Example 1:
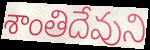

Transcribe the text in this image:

శాంతిదేవుని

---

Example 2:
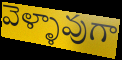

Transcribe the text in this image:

వెళ్ళావుగా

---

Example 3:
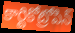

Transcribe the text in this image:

కార్టికోట్రోపిన్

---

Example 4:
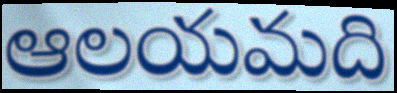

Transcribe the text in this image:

ఆలయమది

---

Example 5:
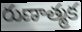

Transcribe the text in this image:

రుణాత్మక